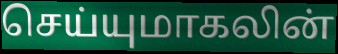
செய்யுமாகலின்